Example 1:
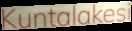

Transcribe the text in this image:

Kuntalakesi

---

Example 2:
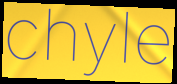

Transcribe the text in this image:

chyle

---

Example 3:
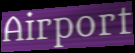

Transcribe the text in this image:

Airport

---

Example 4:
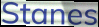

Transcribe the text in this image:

Stanes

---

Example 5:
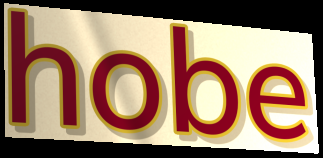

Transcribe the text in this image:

hobe